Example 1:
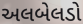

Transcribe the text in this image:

અલબેલડો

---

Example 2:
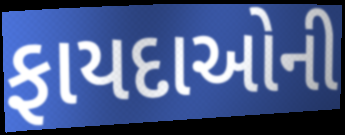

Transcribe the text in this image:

ફાયદાઓની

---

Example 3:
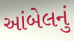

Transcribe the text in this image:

આંબેલનું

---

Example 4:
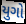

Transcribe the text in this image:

યુગો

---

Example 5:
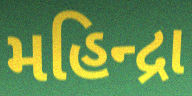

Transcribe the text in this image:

મહિન્દ્રા